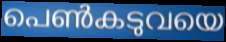
പെൺകടുവയെ